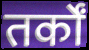
तर्कों